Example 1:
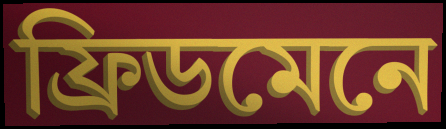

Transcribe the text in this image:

ফ্ৰিডমেনে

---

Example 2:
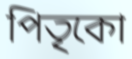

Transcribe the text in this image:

পিতৃকো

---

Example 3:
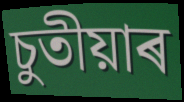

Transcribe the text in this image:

চুতীয়াৰ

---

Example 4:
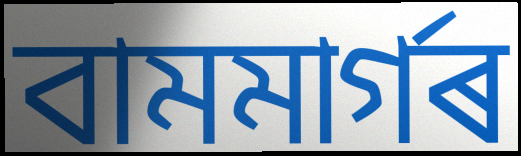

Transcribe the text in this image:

বামমাৰ্গৰ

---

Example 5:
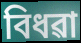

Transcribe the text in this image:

বিধৱা